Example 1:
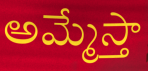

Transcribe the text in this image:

అమ్మేస్తా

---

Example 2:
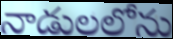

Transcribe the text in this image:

నాడులలోను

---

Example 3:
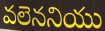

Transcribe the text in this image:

వలెననియు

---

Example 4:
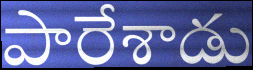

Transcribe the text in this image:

పారేశాడు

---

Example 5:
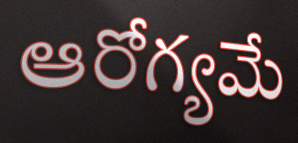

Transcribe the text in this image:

ఆరోగ్యమే